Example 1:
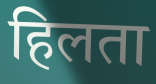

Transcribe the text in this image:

हिलता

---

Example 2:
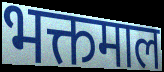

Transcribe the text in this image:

भक्तमाल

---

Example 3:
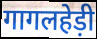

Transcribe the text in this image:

गागलहेड़ी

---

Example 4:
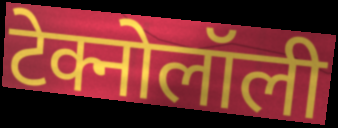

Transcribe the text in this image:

टेक्नोलॉली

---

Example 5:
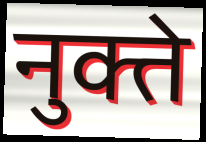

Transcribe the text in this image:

नुक्ते